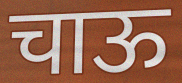
चाऊ